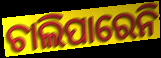
ଚାଲିପାରେନି